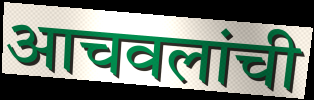
आचवलांची